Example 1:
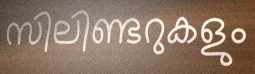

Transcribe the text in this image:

സിലിണ്ടറുകളും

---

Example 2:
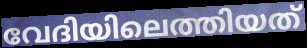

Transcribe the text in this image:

വേദിയിലെത്തിയത്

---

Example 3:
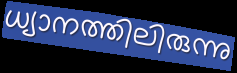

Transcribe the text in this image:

ധ്യാനത്തിലിരുന്നു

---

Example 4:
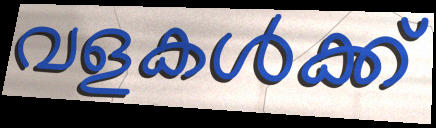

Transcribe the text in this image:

വളകൾക്ക്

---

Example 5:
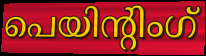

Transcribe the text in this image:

പെയിന്റിംഗ്